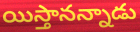
యిస్తానన్నాడు